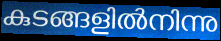
കുടങ്ങളിൽനിന്നു